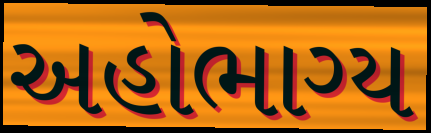
અહોભાગ્ય